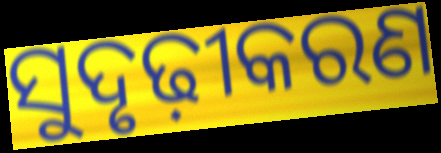
ସୁଦୃଢ଼ୀକରଣ